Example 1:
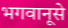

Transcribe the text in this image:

भगवानूसे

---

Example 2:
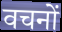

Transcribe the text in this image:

वचनों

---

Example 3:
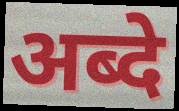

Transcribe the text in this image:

अब्दे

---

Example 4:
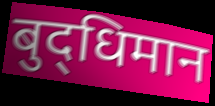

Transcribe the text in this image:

बुद्धिमान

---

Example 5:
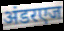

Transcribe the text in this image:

अंडरएज